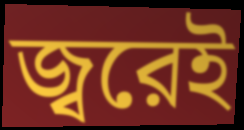
জ্বরেই